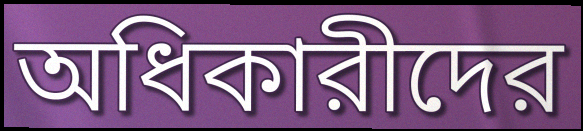
অধিকারীদের